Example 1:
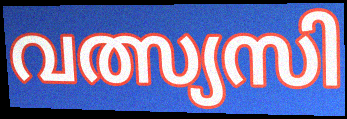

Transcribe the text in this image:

വത്സ്യസി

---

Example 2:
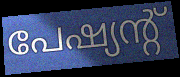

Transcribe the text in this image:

പേഷ്യന്റ്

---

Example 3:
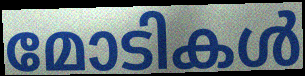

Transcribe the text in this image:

മോടികൾ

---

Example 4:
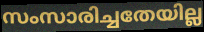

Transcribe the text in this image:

സംസാരിച്ചതേയില്ല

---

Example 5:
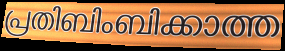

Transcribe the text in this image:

പ്രതിബിംബിക്കാത്ത